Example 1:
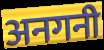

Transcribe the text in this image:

अनगनी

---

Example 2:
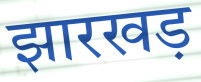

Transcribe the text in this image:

झारखड़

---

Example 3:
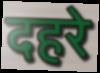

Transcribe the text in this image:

दहरे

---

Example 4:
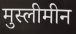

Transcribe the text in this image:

मुस्लीमीन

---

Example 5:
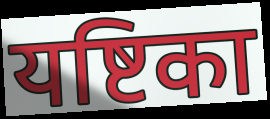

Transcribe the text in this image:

यष्टिका